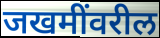
जखमींवरील